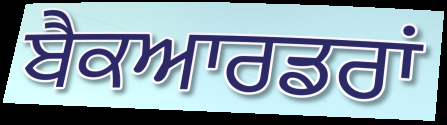
ਬੈਕਆਰਡਰਾਂ